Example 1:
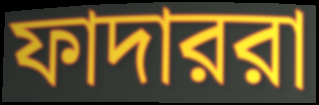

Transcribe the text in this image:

ফাদাররা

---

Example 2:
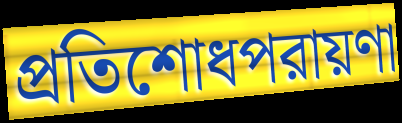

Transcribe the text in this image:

প্রতিশোধপরায়ণা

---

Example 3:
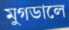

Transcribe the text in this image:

মুগডালে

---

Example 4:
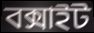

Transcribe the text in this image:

বক্সাইট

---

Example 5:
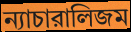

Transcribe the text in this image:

ন্যাচারালিজম